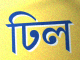
ঢিল